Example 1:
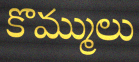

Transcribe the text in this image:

కొమ్ములు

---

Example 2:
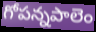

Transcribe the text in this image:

గోపన్నపాలెం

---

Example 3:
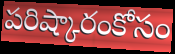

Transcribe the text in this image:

పరిష్కారంకోసం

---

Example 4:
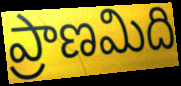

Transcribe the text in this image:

ప్రాణమిది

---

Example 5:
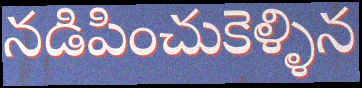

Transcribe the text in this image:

నడిపించుకెళ్ళిన